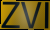
ZVI